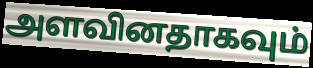
அளவினதாகவும்